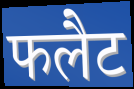
फलैट